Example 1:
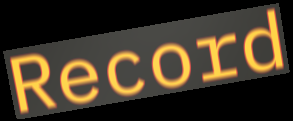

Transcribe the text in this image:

Record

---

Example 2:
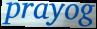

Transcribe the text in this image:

prayog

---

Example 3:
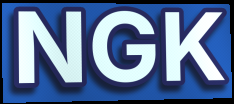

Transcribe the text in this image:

NGK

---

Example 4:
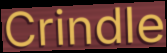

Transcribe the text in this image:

Crindle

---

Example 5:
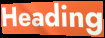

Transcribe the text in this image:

Heading